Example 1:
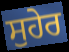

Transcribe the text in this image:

ਸੁਹੇਰ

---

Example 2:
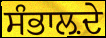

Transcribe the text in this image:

ਸੰਭਾਲ਼ਦੇ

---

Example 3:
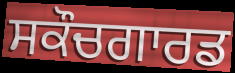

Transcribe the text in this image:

ਸਕੌਚਗਾਰਡ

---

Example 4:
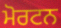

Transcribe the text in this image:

ਮੋਰਟਨ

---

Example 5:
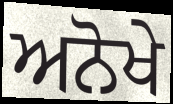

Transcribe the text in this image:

ਅਨੋਖੇ